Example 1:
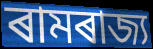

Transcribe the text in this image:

ৰামৰাজ্য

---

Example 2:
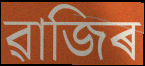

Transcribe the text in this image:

ৱাজিৰ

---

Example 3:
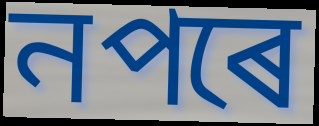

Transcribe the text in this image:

নপৰে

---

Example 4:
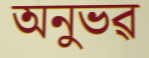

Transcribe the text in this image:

অনুভৱ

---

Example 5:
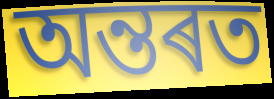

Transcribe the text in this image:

অন্তৰত